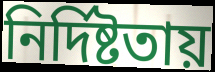
নির্দিষ্টতায়